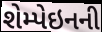
શેમ્પેઇનની